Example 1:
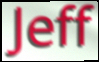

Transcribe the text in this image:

Jeff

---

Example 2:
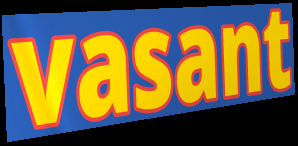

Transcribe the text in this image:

vasant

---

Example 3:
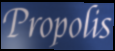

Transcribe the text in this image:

Propolis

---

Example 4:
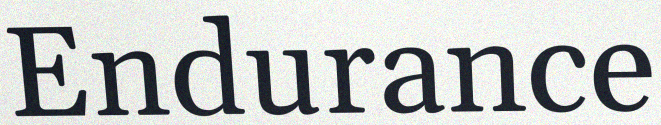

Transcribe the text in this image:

Endurance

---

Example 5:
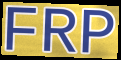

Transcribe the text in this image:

FRP